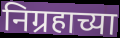
निग्रहाच्या